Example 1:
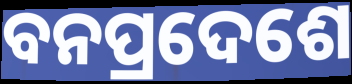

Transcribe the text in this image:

ବନପ୍ରଦେଶେ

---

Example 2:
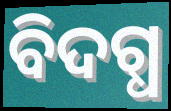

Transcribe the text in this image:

ବିଦଗ୍ଧ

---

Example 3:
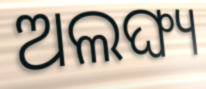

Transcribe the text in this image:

ଅଲଙ୍ଘ୍ୟ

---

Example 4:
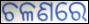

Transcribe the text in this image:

ଚଳଣରେ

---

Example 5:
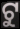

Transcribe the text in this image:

ଟୁ